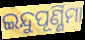
ଇନ୍ଦୁପୂର୍ଣ୍ଣିମା